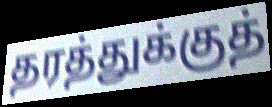
தரத்துக்குத்